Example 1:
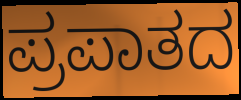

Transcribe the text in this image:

ಪ್ರಪಾತದ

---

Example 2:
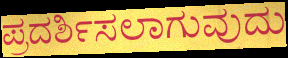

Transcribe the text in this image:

ಪ್ರದರ್ಶಿಸಲಾಗುವುದು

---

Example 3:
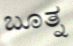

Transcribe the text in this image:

ಬೂತ್ನ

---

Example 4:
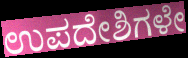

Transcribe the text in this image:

ಉಪದೇಶಿಗಳೇ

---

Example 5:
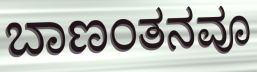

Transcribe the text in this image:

ಬಾಣಂತನವೂ